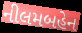
નીલમબહેન